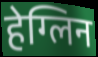
हेग्लिन